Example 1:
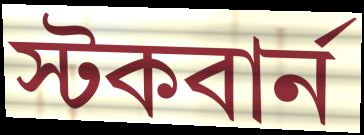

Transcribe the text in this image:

স্টকবার্ন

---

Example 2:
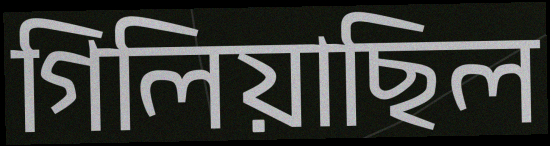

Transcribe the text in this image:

গিলিয়াছিল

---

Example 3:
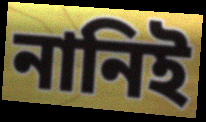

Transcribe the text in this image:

নানিই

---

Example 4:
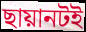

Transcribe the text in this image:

ছায়ানটই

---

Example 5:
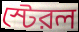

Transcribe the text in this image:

স্টেরল